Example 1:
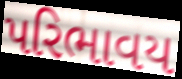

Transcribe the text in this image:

પરિભાવય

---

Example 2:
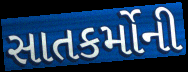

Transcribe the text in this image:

સાતકર્મોની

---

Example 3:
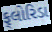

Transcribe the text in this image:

ફ્‌લોરિડા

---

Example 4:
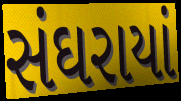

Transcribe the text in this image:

સંઘરાયાં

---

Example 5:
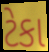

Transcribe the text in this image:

ટેકા